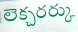
లెక్చరర్కు